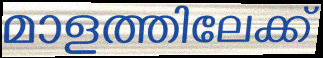
മാളത്തിലേക്ക്